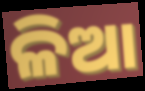
ଳିଆ